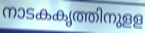
നാടകകൃത്തിനുളള